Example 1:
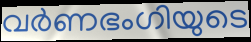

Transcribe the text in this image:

വർണഭംഗിയുടെ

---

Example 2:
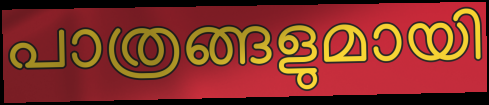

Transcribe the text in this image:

പാത്രങ്ങളുമായി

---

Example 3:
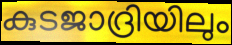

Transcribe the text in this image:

കുടജാദ്രിയിലും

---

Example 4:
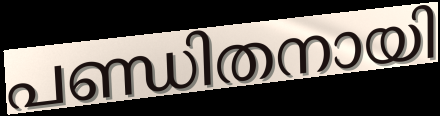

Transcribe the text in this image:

പണ്ഡിതനായി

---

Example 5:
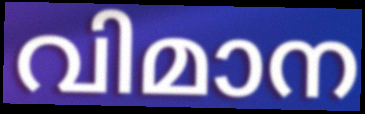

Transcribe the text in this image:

വിമാന